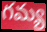
గమ్య